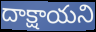
దాక్షాయని